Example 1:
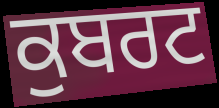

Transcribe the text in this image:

ਕੁਬਰਟ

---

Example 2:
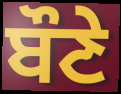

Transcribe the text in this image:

ਬੌਣੇ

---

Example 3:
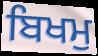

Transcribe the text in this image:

ਬਿਖਮੁ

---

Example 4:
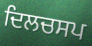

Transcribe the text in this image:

ਦਿਲਚਸਪ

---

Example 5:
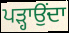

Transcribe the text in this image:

ਪੜ੍ਹਾਉਂਦਾ